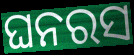
ଘନରସ